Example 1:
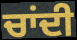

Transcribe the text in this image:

ਚਾਂਦੀ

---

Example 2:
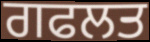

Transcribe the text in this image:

ਗਫਲਤ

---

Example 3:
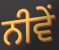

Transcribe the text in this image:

ਨੀਵੇਂ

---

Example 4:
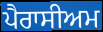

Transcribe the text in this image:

ਪੈਰਾਸੀਅਮ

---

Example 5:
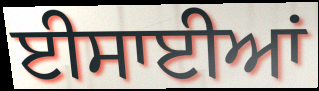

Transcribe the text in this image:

ਈਸਾਈਆਂ